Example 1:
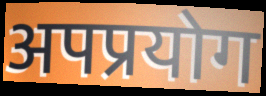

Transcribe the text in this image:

अपप्रयोग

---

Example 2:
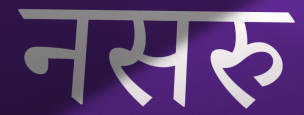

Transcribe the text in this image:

नसरु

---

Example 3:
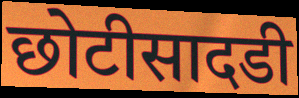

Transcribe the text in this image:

छोटीसादडी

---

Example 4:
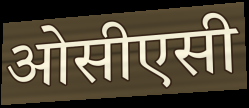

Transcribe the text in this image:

ओसीएसी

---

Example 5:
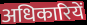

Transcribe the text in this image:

अधिकारियें